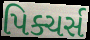
પિક્ચર્સ